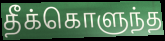
தீக்கொளுந்த